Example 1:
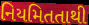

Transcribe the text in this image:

નિયમિતતાથી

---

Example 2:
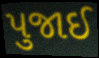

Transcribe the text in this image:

પુજાઈ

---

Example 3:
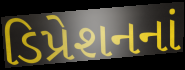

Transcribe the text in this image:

ડિપ્રેશનનાં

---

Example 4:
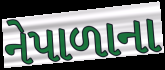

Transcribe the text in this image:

નેપાળાના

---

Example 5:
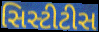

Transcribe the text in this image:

સિસ્ટીટીસ